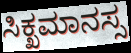
ಸಿಕ್ಖಮಾನಸ್ಸ